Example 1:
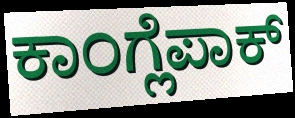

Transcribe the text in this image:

ಕಾಂಗ್ಲೆಪಾಕ್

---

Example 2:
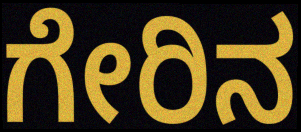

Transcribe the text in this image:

ಗೇರಿನ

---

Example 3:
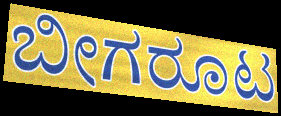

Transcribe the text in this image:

ಬೀಗರೂಟ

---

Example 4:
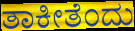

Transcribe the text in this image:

ತಾಕೀತೆಂದು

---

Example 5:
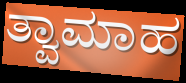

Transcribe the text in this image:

ತ್ವಾಮಾಹ